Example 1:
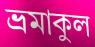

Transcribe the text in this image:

ভ্রমাকুল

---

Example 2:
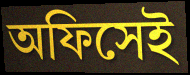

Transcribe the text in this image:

অফিসেই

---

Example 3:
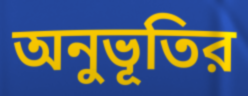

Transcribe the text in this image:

অনুভূতির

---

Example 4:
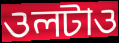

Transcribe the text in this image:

ওলটাও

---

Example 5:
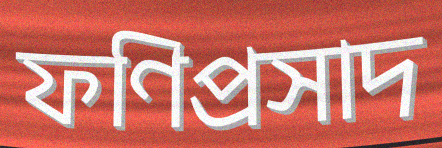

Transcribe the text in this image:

ফণিপ্রসাদ